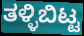
ತಳ್ಳಿಬಿಟ್ಟ